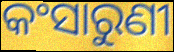
କଂସାରୁଣୀ